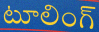
టూలింగ్